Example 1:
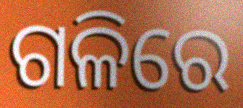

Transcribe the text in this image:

ଗଳିରେ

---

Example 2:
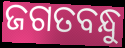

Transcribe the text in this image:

ଜଗତବନ୍ଧୁ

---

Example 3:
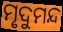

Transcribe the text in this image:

ମୃଦୁମନ୍ଦ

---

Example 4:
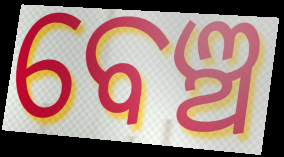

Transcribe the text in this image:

ବେଞ୍ଚ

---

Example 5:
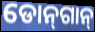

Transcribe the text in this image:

ଡୋନ୍‌ଗାନ୍